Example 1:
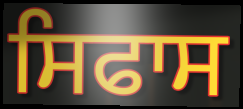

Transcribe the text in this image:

ਸਿਫਾਸ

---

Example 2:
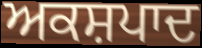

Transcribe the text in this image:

ਅਕਸ਼ਪਾਦ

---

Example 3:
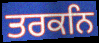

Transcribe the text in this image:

ਤਰਕਨਿ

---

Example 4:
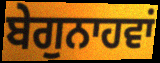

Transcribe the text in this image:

ਬੇਗੁਨਾਹਵਾਂ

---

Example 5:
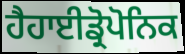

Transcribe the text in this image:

ਹੈਹਾਈਡ੍ਰੋਪੋਨਿਕ